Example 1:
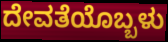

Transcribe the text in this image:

ದೇವತೆಯೊಬ್ಬಳು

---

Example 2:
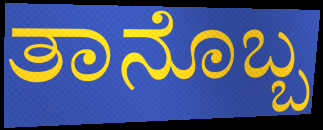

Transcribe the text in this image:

ತಾನೊಬ್ಬ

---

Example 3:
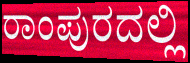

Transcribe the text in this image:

ರಾಂಪುರದಲ್ಲಿ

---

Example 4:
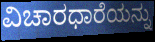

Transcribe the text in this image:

ವಿಚಾರಧಾರೆಯನ್ನು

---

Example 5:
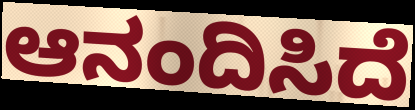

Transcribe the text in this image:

ಆನಂದಿಸಿದೆ